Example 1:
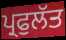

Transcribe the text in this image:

ਪ੍ਰਫੁਲੱਤ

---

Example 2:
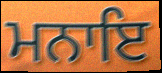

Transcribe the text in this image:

ਮਨਾਇ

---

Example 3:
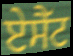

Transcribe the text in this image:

ਏਸੈੱਟ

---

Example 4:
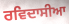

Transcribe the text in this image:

ਰਵਿਦਾਸੀਆ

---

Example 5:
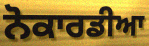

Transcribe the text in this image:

ਨੋਕਾਰਡੀਆ